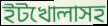
ইটখোলাসহ